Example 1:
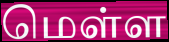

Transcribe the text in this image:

மெள்ள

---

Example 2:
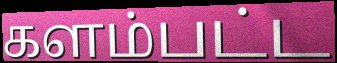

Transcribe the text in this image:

களம்பட்ட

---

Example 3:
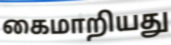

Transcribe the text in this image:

கைமாறியது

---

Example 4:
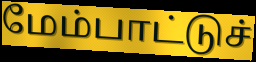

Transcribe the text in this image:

மேம்பாட்டுச்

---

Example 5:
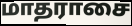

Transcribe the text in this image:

மாதராசை